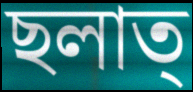
ছলাত্